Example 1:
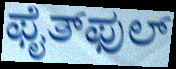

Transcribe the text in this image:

ಫೈತ್‌ಫುಲ್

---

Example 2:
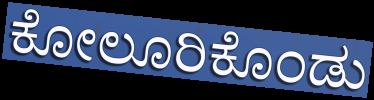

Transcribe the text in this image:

ಕೋಲೂರಿಕೊಂಡು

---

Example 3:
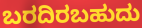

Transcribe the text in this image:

ಬರದಿರಬಹುದು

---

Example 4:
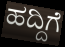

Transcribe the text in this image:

ಹದ್ದಿಗೆ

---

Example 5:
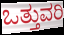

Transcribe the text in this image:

ಒತ್ತುವರಿ